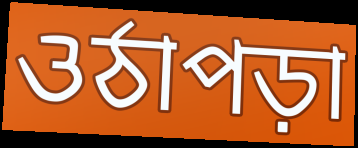
ওঠাপড়া